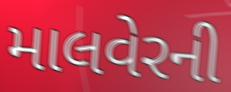
માલવેરની